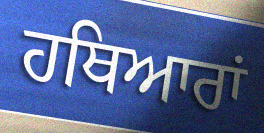
ਹਥਿਆਰਾਂ